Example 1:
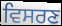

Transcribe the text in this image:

ਵਿਸਰਣ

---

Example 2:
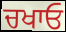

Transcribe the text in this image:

ਚਖਾਓ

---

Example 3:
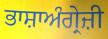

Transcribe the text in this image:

ਭਾਸ਼ਾਅੰਗ੍ਰੇਜ਼ੀ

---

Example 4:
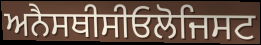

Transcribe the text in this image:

ਅਨੈਸਥੀਸੀਓਲੋਜਿਸਟ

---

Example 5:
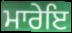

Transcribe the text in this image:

ਮਾਰੇਇ